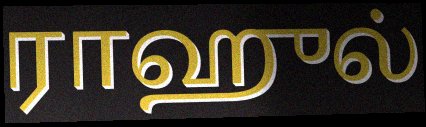
ராஹுல்